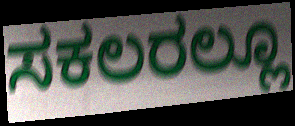
ಸಕಲರಲ್ಲೂ